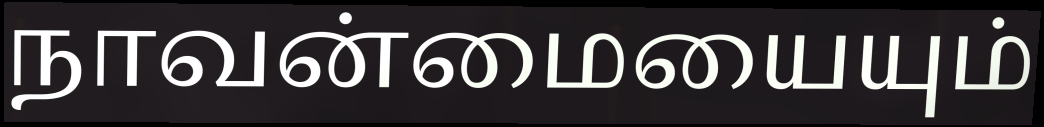
நாவன்மையையும்